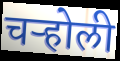
चऱ्होली